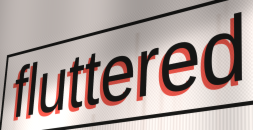
fluttered